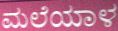
ಮಲೆಯಾಳ